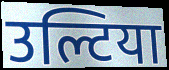
उल्टिया